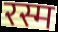
रस्म